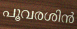
പൂവരശിൻ